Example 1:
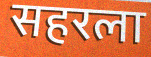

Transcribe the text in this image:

सहरला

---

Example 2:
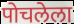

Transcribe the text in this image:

पोचलेला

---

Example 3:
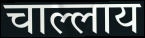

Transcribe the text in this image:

चाल्लाय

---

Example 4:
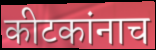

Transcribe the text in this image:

कीटकांनाच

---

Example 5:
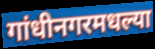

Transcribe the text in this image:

गांधीनगरमधल्या